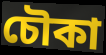
চৌকা